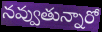
నవ్వుతున్నారో